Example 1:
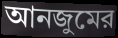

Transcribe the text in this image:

আনজুমের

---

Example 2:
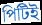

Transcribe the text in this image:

পিটিই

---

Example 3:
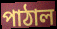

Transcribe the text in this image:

পাঠাল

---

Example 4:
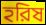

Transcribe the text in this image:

হরিষ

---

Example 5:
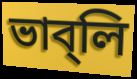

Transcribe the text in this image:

ভাব্‌লি